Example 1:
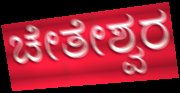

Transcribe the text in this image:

ಚೇತೇಶ್ವರ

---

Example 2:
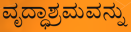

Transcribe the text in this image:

ವೃದ್ಧಾಶ್ರಮವನ್ನು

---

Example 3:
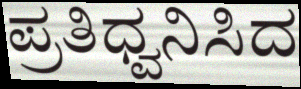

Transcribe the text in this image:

ಪ್ರತಿಧ್ವನಿಸಿದ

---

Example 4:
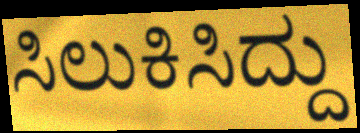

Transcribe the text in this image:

ಸಿಲುಕಿಸಿದ್ದು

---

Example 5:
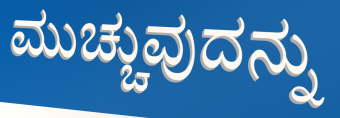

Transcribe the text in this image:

ಮುಚ್ಚುವುದನ್ನು